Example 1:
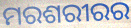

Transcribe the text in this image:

ମରଶରୀରର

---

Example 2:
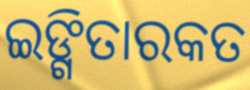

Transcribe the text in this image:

ଇଙ୍ଗିତାରକତ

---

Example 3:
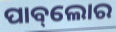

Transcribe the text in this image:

ପାବ୍‌ଲୋର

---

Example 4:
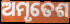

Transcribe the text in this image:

ଅମୃତେଶ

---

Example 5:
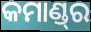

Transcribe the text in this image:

କମାଣ୍ଡ୍‌ର